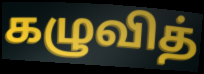
கழுவித்